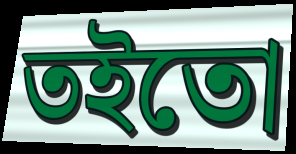
তইতো